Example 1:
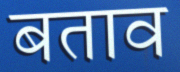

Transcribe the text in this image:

बताव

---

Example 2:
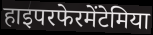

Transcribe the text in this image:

हाइपरफेरमेंटेमिया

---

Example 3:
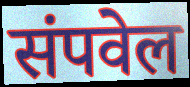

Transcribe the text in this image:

संपवेल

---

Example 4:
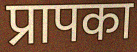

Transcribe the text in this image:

प्रापका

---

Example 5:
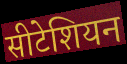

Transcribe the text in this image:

सीटेशियन